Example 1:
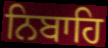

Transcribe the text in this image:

ਨਿਬਾਹਿ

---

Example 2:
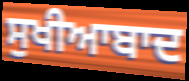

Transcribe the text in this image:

ਸੁਖੀਆਬਾਦ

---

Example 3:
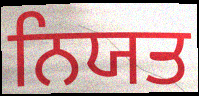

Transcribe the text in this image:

ਨਿਯਤ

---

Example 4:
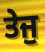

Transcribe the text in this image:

ਤੇਜੁ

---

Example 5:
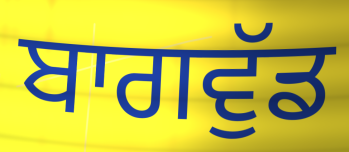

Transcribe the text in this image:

ਬਾਗਵੁੱਡ